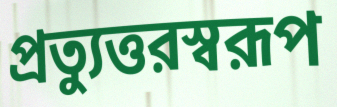
প্রত্যুত্তরস্বরূপ